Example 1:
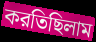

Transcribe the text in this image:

করতিছিলাম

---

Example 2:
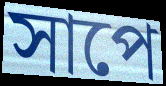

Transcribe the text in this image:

সাপে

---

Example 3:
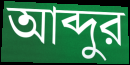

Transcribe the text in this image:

আব্দুর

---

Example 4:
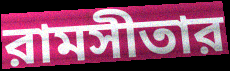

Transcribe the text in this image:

রামসীতার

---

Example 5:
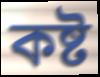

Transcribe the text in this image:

কষ্ট